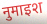
नुमाइश